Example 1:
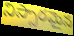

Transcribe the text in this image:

నిస్సారమైన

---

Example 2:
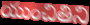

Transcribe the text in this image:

యుంచితిని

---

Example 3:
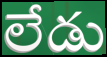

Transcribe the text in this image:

లేడు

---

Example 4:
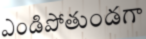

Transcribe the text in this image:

ఎండిపోతుండగా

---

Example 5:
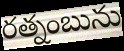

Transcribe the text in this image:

రత్నంబును